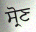
ਸ੍ਰੋਣ